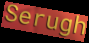
Serugh